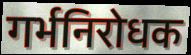
गर्भनिरोधक